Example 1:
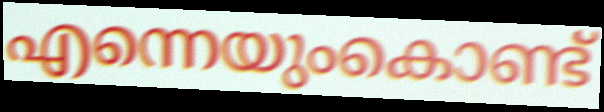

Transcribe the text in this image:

എന്നെയുംകൊണ്ട്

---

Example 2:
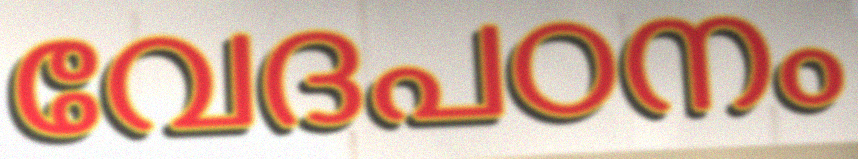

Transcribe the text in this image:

വേദപഠനം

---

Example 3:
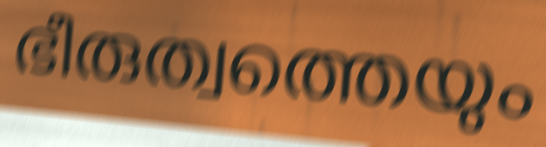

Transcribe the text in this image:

ഭീരുത്വത്തെയും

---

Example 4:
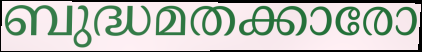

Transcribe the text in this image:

ബുദ്ധമതക്കാരോ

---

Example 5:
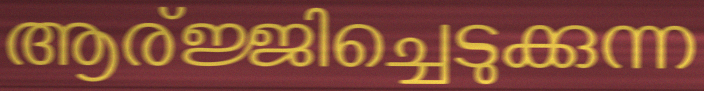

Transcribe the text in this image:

ആര്ജ്ജിച്ചെടുക്കുന്ന